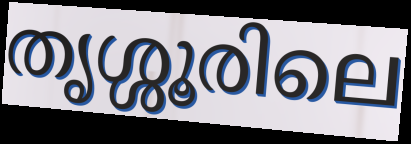
തൃശ്ശൂരിലെ